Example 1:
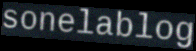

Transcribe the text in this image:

sonelablog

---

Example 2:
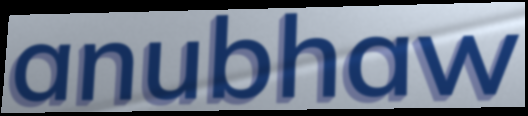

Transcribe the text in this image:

anubhaw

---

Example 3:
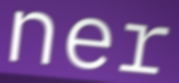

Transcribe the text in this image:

ner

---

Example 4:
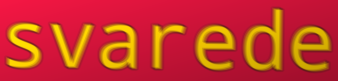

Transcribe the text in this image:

svarede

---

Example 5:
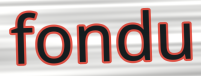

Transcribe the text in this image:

fondu